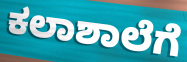
ಕಲಾಶಾಲೆಗೆ